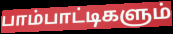
பாம்பாட்டிகளும்